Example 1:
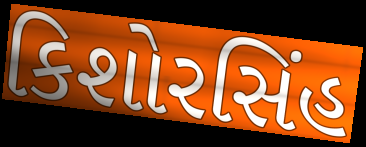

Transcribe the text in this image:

કિશોરસિંહ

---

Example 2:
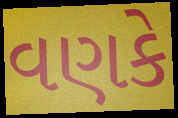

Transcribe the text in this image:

વણકે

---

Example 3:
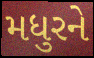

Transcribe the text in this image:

મધુરને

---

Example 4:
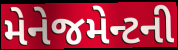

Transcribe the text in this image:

મેનેજમેન્ટની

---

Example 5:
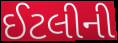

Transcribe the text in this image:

ઈટલીની